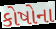
કોષોના